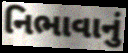
નિભાવાનું